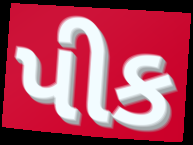
પીક